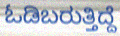
ಓಡಿಬರುತ್ತಿದ್ದೆ